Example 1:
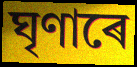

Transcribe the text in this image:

ঘৃণাৰে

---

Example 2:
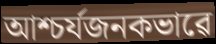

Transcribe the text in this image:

আশ্চৰ্যজনকভাৱে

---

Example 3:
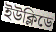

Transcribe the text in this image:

ইউক্লিডে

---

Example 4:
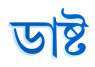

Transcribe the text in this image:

ডাষ্ট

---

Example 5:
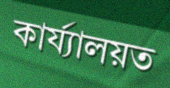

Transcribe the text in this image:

কাৰ্য্যালয়ত